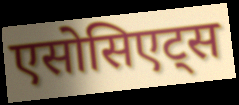
एसोसिएट्स